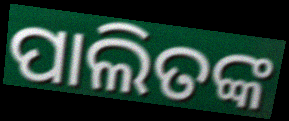
ପାଲିତଙ୍କ